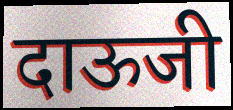
दाऊजी